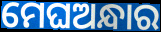
ମେଘଅନ୍ଧାର